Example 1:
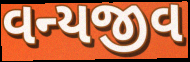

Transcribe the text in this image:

વન્યજીવ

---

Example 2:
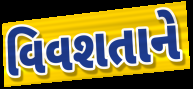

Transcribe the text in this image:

વિવશતાને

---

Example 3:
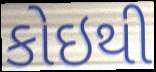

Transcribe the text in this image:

કોઇથી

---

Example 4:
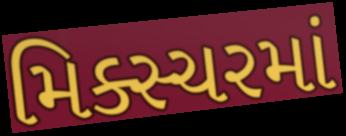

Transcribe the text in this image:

મિક્સ્ચરમાં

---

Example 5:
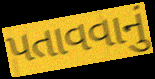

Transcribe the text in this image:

પતાવવાનું